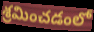
శ్రమించడంలో